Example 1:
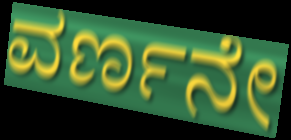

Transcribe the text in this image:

ವರ್ಣನೇ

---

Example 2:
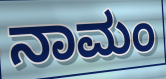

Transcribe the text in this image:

ನಾಮಂ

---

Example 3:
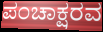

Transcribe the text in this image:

ಪಂಚಾಕ್ಷರವ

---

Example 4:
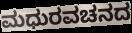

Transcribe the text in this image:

ಮಧುರವಚನದ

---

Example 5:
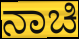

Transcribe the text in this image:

ನಾಚಿ